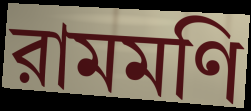
রামমণি